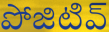
పోజిటివ్